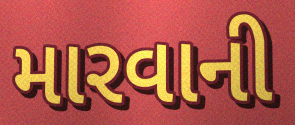
મારવાની